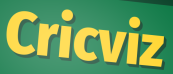
Cricviz